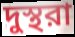
দুস্থরা